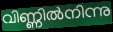
വിണ്ണിൽനിന്നു